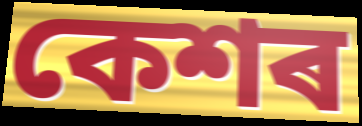
কেশৰ